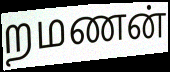
றமணன்